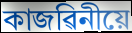
কাজৱিনীয়ে